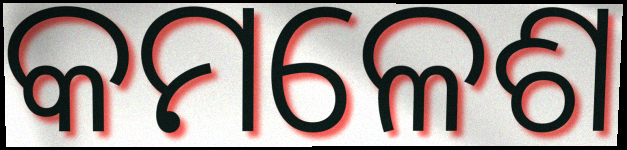
କମଳେଶ